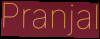
Pranjal